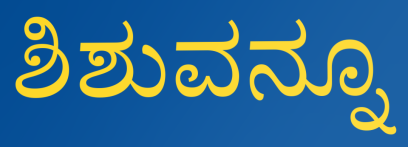
ಶಿಶುವನ್ನೂ